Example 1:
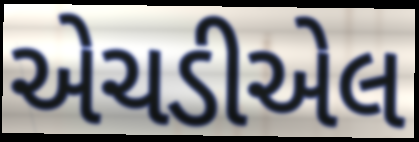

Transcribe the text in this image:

એચડીએલ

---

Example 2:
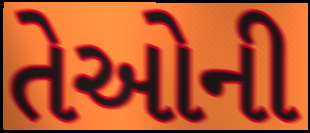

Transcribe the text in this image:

તેઓની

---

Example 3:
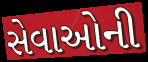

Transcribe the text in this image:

સેવાઓની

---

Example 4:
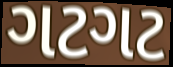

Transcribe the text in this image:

ગટગટ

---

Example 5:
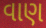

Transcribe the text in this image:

વાણ